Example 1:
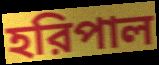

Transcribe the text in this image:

হরিপাল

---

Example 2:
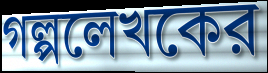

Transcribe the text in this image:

গল্পলেখকের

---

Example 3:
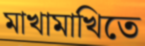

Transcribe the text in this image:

মাখামাখিতে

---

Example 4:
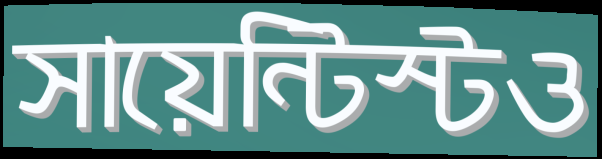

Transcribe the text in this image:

সায়েন্টিস্টও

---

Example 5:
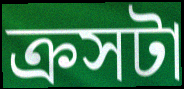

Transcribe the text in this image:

ক্রসটা